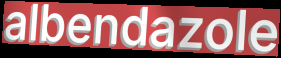
albendazole